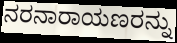
ನರನಾರಾಯಣರನ್ನು